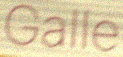
Galle